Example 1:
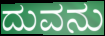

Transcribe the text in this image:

ದುವನು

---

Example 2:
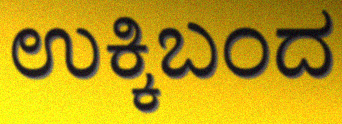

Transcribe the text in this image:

ಉಕ್ಕಿಬಂದ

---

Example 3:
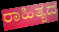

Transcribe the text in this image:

ರಾಹಿತ್ಯದ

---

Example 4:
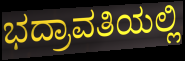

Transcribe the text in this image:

ಭದ್ರಾವತಿಯಲ್ಲಿ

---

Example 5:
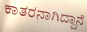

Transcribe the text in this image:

ಕಾತರನಾಗಿದ್ದಾನೆ